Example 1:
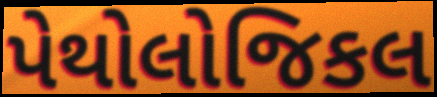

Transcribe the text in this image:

પેથોલોજિકલ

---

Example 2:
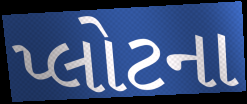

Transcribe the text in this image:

પ્લોટના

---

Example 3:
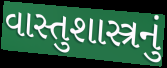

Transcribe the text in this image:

વાસ્તુશાસ્ત્રનું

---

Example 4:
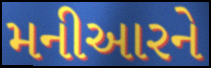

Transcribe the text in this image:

મનીઆરને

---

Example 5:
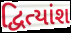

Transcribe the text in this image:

દ્વિત્યાંશ